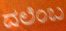
ದಲೆಂಬ